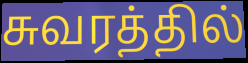
சுவரத்தில்